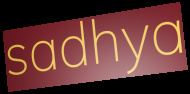
sadhya